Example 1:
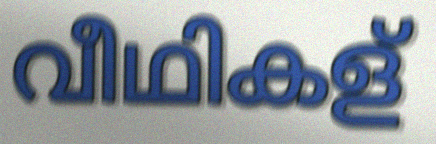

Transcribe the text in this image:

വീഥികള്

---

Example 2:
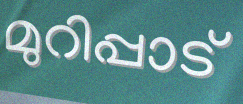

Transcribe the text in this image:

മുറിപ്പാട്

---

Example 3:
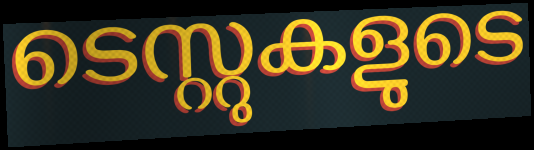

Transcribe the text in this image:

ടെസ്റ്റുകളുടെ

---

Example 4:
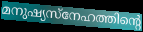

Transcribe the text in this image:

മനുഷ്യസ്നേഹത്തിന്റെ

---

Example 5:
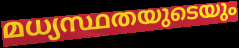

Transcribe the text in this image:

മധ്യസ്ഥതയുടെയും